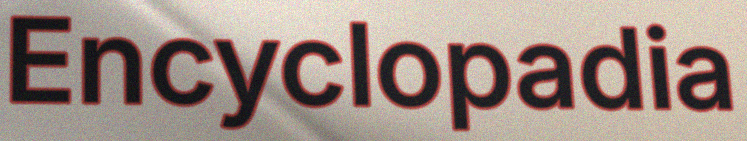
Encyclopadia